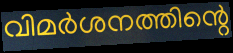
വിമർശനത്തിന്റെ